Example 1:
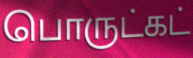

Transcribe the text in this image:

பொருட்கட்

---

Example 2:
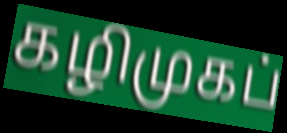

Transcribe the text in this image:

கழிமுகப்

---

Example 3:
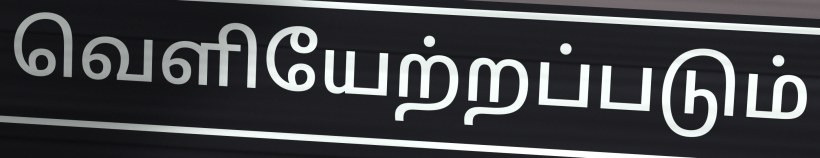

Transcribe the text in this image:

வெளியேற்றப்படும்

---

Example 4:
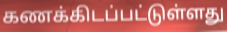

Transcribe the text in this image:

கணக்கிடப்பட்டுள்ளது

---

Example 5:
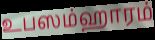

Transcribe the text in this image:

உபஸம்ஹாரம்